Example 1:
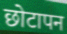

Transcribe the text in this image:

छोटापन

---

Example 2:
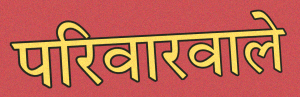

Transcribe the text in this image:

परिवारवाले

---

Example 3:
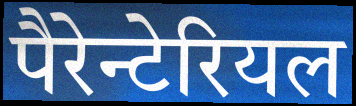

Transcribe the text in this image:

पैरेन्टेरियल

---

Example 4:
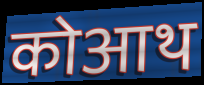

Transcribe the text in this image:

कोआथ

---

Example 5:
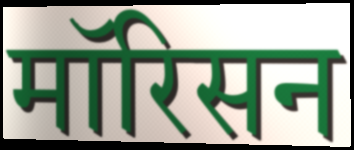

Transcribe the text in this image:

मॉरिसन